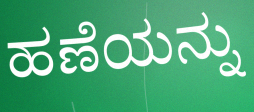
ಹಣೆಯನ್ನು